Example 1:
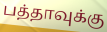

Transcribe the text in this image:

பத்தாவுக்கு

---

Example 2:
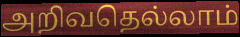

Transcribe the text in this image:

அறிவதெல்லாம்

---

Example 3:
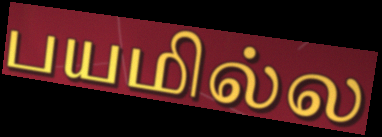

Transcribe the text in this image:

பயமில்ல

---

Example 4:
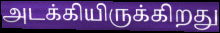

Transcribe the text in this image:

அடக்கியிருக்கிறது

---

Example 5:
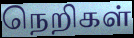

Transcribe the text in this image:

நெறிகள்